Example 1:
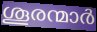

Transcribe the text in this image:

ശൂരന്മാർ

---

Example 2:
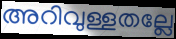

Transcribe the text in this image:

അറിവുള്ളതല്ലേ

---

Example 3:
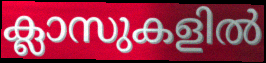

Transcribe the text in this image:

ക്ലാസുകളിൽ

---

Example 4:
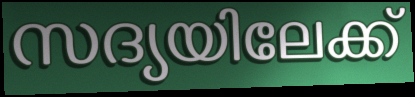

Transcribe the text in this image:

സദ്യയിലേക്ക്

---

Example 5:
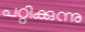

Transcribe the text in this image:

പറ്റിക്കുന്നു